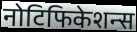
नोटिफिकेशन्स